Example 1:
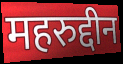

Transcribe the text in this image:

महरुद्दीन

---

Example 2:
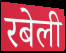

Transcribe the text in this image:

रबेली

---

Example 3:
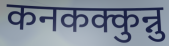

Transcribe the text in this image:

कनकक्कुन्नु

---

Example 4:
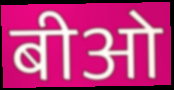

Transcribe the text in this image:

बीओ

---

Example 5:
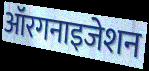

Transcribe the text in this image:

ऑरगनाइजेशन